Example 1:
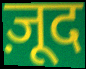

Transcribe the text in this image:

ज़ूद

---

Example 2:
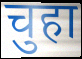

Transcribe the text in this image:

चुहा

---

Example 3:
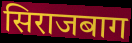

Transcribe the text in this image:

सिराजबाग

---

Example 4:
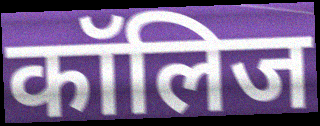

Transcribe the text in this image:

कॉलिज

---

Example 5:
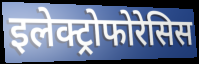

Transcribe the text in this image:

इलेक्ट्रोफोरेसिस